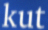
kut